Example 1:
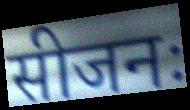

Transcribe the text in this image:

सीजनः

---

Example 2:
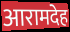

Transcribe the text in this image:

आरामदेह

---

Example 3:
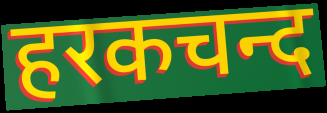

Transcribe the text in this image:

हरकचन्द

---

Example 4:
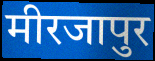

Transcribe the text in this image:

मीरजापुर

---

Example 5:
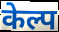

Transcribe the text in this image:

केल्प